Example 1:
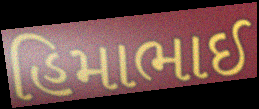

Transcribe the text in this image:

હિમાભાઈ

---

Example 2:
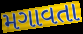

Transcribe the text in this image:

મગાવતા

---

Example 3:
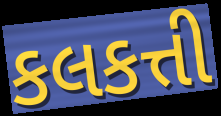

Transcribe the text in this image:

કલકત્તી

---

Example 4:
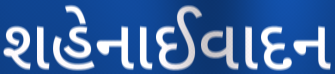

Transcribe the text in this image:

શહેનાઈવાદન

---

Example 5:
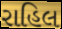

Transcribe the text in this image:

રાહિલ